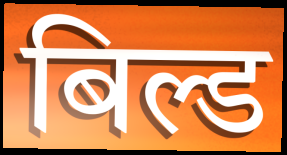
बिल्ड